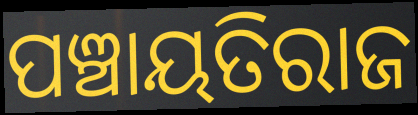
ପଞ୍ଚାୟତିରାଜ